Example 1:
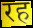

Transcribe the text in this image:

रह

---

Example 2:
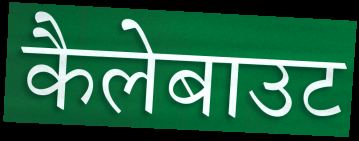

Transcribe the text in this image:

कैलेबाउट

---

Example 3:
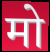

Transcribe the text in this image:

मो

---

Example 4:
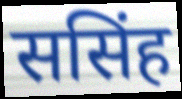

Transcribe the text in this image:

ससिंह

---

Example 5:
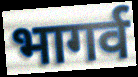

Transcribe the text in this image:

भागर्व